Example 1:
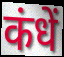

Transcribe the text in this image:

कंधें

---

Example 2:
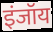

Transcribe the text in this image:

इंजॉय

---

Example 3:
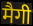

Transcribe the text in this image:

मैगी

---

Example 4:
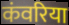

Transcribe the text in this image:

कंवरिया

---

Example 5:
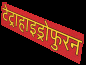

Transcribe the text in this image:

टेट्राहाइड्रोफुरन